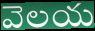
వెలయ